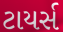
ટાયર્સ